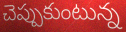
చెప్పుకుంటున్న